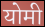
योमी